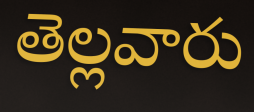
తెల్లవారు